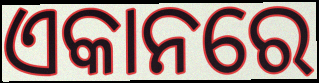
ଏକାନରେ